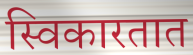
स्विकारतात